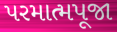
પરમાત્મપૂજા